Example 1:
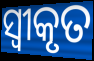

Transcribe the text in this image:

ସ୍ବୀକୃତ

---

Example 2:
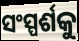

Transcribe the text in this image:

ସଂସ୍ପର୍ଶକୁ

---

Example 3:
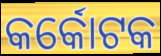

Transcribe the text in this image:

କର୍କୋଟକ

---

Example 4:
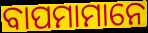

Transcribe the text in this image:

ବାପମାମାନେ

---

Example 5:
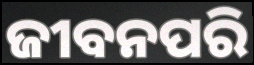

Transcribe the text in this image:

ଜୀବନପରି